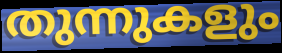
തുന്നുകളും